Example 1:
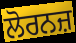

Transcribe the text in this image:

ਲੋਰਨਜ਼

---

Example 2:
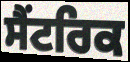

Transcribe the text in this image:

ਸੈਂਟਰਿਕ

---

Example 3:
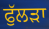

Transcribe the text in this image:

ਫੁੱਲੜਾ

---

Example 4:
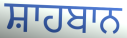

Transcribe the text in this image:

ਸ਼ਾਹਬਾਨ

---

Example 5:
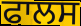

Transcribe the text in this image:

ਫਾਲਸ